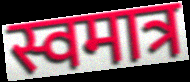
स्वमात्र